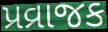
પ્રવ્રાજક